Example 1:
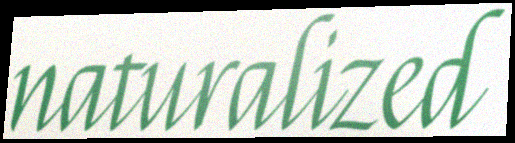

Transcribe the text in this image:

naturalized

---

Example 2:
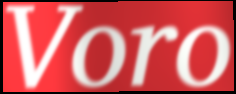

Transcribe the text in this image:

Voro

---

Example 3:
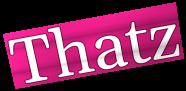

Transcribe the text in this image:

Thatz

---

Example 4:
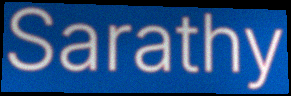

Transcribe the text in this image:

Sarathy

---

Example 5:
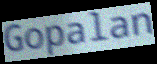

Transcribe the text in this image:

Gopalan